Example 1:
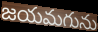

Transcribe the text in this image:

జయమగును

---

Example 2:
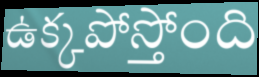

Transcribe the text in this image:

ఉక్కపోస్తోంది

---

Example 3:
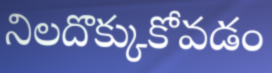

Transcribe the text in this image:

నిలదొక్కుకోవడం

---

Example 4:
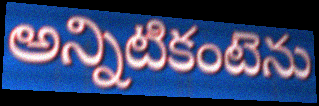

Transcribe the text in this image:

అన్నిటికంటెను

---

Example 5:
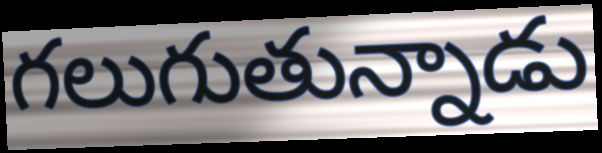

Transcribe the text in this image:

గలుగుతున్నాడు